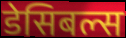
डेसिबल्स